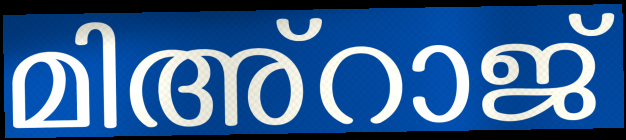
മിഅ്റാജ്